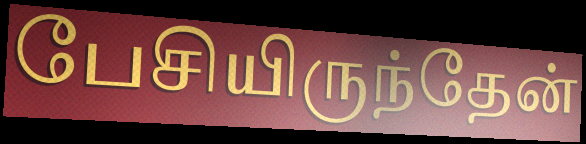
பேசியிருந்தேன்